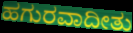
ಹಗುರವಾದೀತು